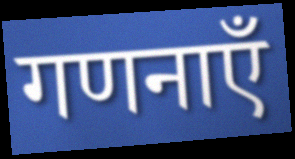
गणनाएँ